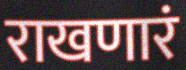
राखणारं